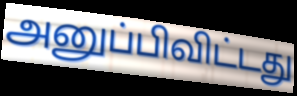
அனுப்பிவிட்டது